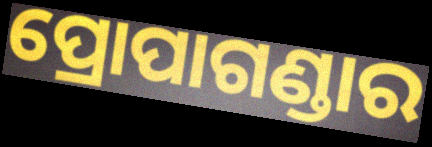
ପ୍ରୋପାଗଣ୍ଡାର